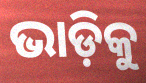
ଭାଡ଼ିକୁ